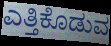
ಎತ್ತಿಕೊಡುವ